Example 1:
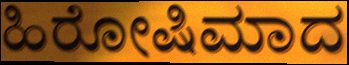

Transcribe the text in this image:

ಹಿರೋಷಿಮಾದ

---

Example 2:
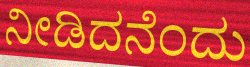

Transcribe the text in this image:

ನೀಡಿದನೆಂದು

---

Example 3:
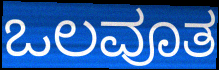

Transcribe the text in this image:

ಒಲವೂತ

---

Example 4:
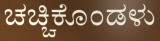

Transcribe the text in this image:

ಚಚ್ಚಿಕೊಂಡಳು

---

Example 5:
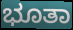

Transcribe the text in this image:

ಭೂತಾ